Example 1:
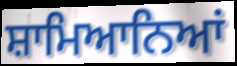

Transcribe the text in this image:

ਸ਼ਾਮਿਆਨਿਆਂ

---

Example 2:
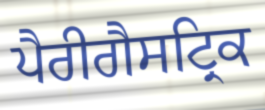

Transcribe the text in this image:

ਪੈਰੀਗੈਸਟ੍ਰਿਕ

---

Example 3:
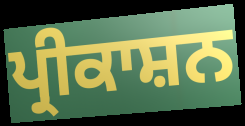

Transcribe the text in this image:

ਪ੍ਰੀਕਾਸ਼ਨ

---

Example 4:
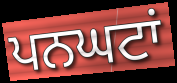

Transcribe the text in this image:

ਪਨਘਟਾਂ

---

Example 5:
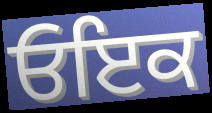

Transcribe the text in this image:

ਓਇਕ